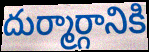
దుర్మార్గానికి